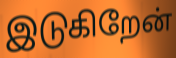
இடுகிறேன்